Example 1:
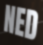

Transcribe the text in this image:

NED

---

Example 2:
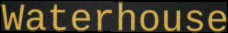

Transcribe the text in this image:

Waterhouse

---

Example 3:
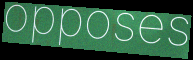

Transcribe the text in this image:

opposes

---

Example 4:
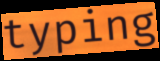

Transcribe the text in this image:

typing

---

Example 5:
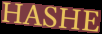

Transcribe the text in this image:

HASHE